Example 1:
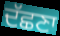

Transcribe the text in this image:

ਦੱਛਣਾ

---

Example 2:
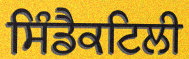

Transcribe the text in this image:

ਸਿੰਡੈਕਟਿਲੀ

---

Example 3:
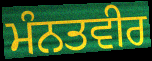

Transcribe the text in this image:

ਮੰਨਤਵੀਰ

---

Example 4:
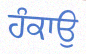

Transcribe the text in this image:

ਹੰਕਾਉ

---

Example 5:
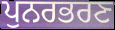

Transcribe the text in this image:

ਪੁਨਰਭਰਣ